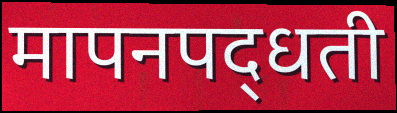
मापनपद्धती